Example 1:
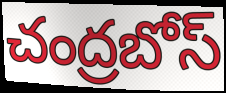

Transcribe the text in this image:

చంద్రబోస్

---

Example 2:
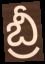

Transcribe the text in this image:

బ్రీ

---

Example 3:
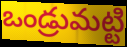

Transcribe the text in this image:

ఒండ్రుమట్టి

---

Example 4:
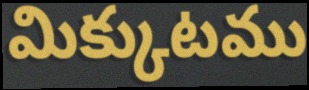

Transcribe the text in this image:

మిక్కుటము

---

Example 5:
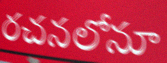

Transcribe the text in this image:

రచనలోనూ